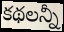
కథలన్నీ